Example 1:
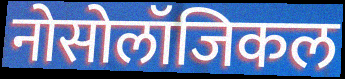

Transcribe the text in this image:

नोसोलॉजिकल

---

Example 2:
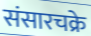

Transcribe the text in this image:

संसारचक्रे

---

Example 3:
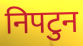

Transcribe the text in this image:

निपटुन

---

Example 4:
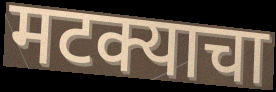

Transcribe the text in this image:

मटक्याचा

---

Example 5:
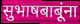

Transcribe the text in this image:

सुभाषबाबूंना